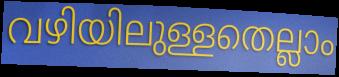
വഴിയിലുള്ളതെല്ലാം